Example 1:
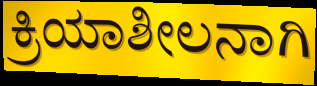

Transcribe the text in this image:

ಕ್ರಿಯಾಶೀಲನಾಗಿ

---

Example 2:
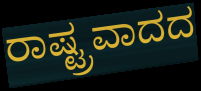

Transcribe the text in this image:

ರಾಷ್ಟ್ರವಾದದ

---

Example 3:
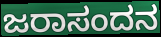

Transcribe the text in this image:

ಜರಾಸಂದನ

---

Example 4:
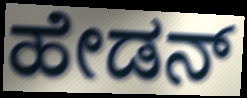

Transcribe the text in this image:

ಹೇಡನ್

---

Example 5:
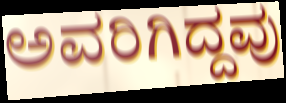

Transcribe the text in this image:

ಅವರಿಗಿದ್ದವು